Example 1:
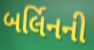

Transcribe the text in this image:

બર્લિનની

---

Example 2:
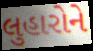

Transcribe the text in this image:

લુહારોને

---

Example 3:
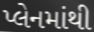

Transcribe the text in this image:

પ્લેનમાંથી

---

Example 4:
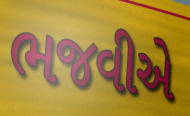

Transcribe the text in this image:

ભજવીએ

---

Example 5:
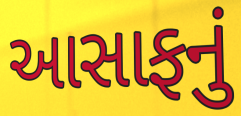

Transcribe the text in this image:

આસાફનું